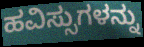
ಹವಿಸ್ಸುಗಳನ್ನು